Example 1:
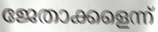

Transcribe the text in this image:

ജേതാക്കളെന്ന്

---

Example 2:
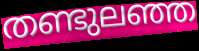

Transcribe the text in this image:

തണ്ടുലഞ്ഞ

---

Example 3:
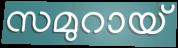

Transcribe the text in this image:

സമുറായ്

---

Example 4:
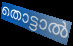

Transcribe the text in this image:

തൊട്ടാൽ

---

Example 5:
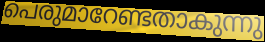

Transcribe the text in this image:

പെരുമാറേണ്ടതാകുന്നു